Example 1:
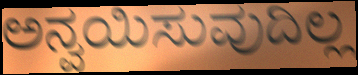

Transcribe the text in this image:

ಅನ್ವಯಿಸುವುದಿಲ್ಲ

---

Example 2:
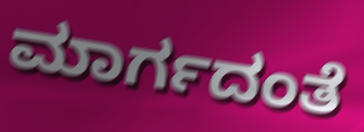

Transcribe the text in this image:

ಮಾರ್ಗದಂತೆ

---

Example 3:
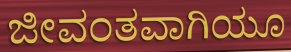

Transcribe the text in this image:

ಜೀವಂತವಾಗಿಯೂ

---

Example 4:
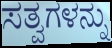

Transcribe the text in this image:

ಸತ್ವಗಳನ್ನು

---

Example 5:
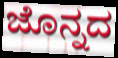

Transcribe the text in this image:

ಜೊನ್ನದ